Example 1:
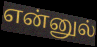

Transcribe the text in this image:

என்னுல்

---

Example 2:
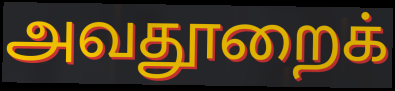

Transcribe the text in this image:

அவதூறைக்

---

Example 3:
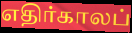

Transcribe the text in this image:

எதிர்காலப்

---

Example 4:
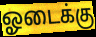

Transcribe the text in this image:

ஓடைக்கு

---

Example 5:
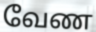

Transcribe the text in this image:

வேண